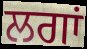
ਲਗਾਂ